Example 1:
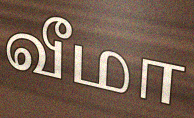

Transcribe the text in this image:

வீமா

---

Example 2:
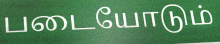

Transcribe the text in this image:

படையோடும்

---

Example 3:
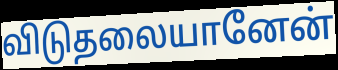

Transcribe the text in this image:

விடுதலையானேன்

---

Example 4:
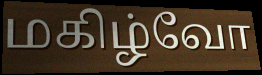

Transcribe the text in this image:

மகிழ்வோ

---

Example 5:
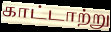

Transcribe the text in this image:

காட்டாற்று